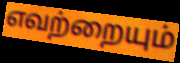
எவற்றையும்